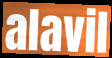
alavil